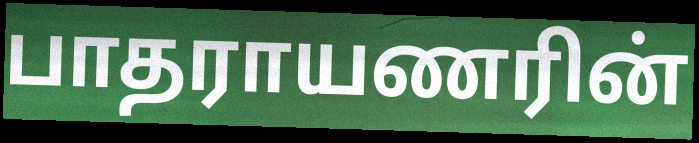
பாதராயணரின்